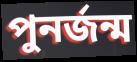
পুনর্জন্ম